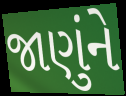
જાણુંને